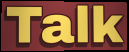
Talk